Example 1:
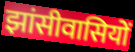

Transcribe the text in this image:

झांसीवासियों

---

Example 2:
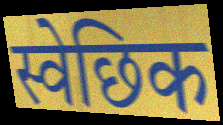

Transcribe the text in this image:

स्वेछिक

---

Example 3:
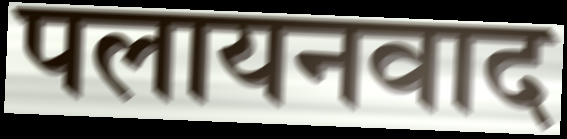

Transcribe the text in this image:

पलायनवाद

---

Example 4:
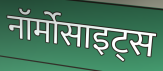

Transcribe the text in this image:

नॉर्मोसाइट्स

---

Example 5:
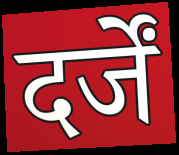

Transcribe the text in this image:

दर्जें